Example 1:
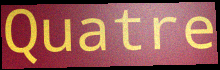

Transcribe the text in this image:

Quatre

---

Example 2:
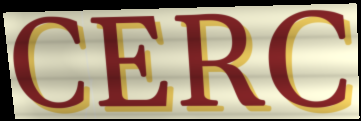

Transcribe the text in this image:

CERC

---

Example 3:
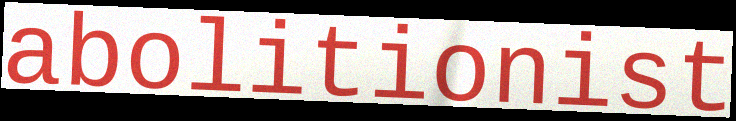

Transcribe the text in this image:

abolitionist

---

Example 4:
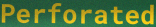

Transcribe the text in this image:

Perforated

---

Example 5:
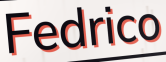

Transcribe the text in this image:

Fedrico